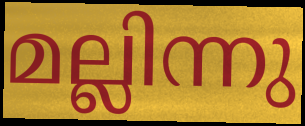
മല്ലിന്നു